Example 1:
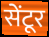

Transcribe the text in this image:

सेंटूर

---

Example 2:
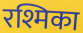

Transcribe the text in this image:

रश्मिका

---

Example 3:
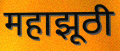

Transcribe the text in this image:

महाझूठी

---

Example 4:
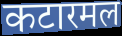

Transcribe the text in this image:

कटारमल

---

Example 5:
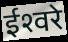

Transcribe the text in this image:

ईश्वरे